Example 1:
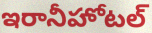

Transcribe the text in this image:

ఇరానీహోటల్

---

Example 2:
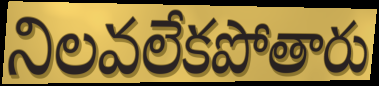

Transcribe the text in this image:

నిలవలేకపోతారు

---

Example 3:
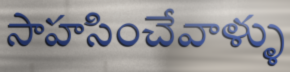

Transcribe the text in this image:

సాహసించేవాళ్ళు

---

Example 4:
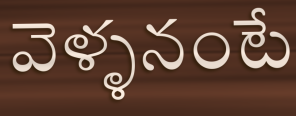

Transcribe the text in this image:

వెళ్ళనంటే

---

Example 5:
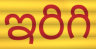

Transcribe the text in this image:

ఇరిగి